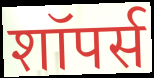
शॉपर्स